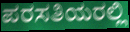
ಪರಸತಿಯರಲ್ಲಿ